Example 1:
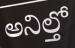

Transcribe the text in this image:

అనిల్తో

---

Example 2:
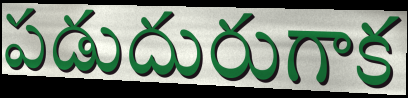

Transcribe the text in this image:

పడుదురుగాక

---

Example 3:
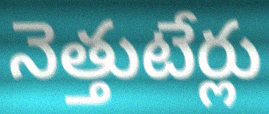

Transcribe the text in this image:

నెత్తుటేర్లు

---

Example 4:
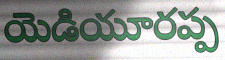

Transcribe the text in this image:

యెడియూరప్ప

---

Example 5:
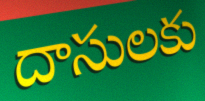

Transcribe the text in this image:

దాసులకు